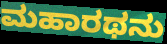
ಮಹಾರಥನು